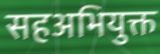
सहअभियुक्त